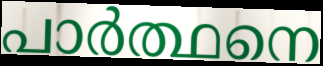
പാർത്ഥനെ